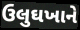
ઉલુઘખાને